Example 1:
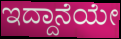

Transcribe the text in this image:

ಇದ್ದಾನೆಯೇ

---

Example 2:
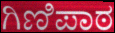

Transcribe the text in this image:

ಗಿಣಿಪಾಠ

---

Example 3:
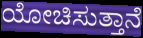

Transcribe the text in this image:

ಯೋಚಿಸುತ್ತಾನೆ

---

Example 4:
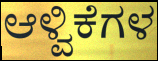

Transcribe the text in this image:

ಆಳ್ವಿಕೆಗಳ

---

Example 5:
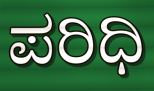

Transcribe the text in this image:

ಪರಿಧಿ